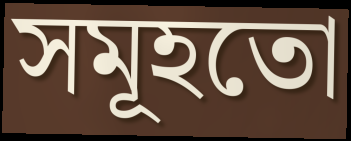
সমূহতো